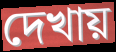
দেখায়